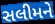
સલીમને